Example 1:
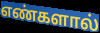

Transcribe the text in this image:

எண்களால்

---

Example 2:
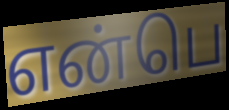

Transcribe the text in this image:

என்பெ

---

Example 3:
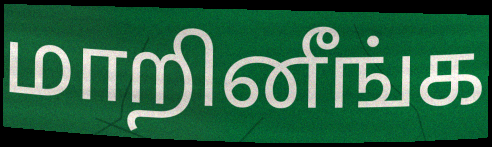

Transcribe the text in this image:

மாறினீங்க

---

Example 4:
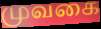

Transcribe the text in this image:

முவகை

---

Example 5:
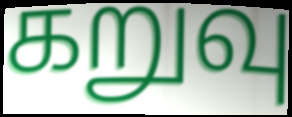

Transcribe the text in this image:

கறுவு